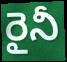
రైనీ